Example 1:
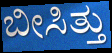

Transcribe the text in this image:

ಬೀಸಿತ್ತು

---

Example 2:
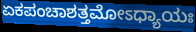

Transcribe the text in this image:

ಏಕಪಂಚಾಶತ್ತಮೋಽಧ್ಯಾಯಃ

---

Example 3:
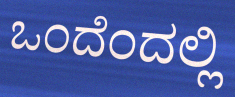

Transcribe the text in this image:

ಒಂದೆಂದಲ್ಲಿ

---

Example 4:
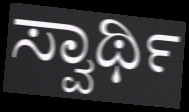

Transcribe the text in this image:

ಸ್ವಾರ್ಥಿ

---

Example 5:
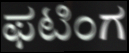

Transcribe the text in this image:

ಫಟಿಂಗ